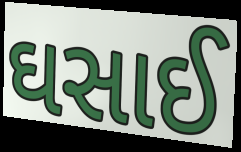
ઘસાઈ